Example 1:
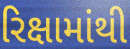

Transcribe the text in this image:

રિક્ષામાંથી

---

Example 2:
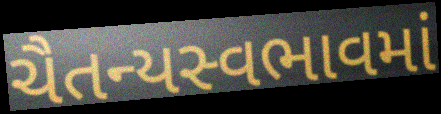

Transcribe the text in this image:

ચૈતન્યસ્વભાવમાં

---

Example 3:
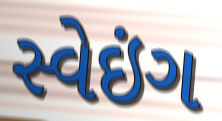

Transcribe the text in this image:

સ્વેઇંગ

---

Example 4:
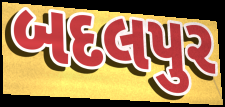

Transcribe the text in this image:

બદલપુર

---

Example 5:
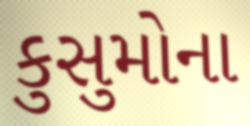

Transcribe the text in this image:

કુસુમોના